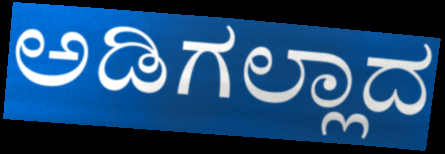
ಅಡಿಗಲ್ಲಾದ